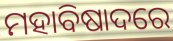
ମହାବିଷାଦରେ